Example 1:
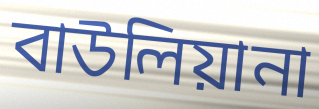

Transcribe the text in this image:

বাউলিয়ানা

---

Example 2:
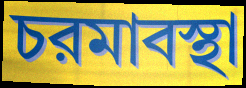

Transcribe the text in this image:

চরমাবস্থা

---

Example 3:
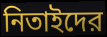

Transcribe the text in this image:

নিতাইদের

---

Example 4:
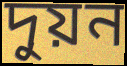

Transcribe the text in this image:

দুয়ন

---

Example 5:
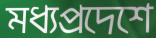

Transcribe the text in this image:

মধ্যপ্রদেশে